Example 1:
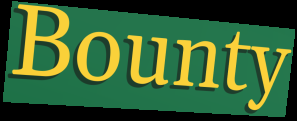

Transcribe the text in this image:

Bounty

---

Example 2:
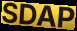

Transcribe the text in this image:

SDAP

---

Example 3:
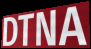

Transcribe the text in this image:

DTNA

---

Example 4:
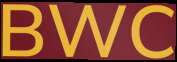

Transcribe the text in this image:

BWC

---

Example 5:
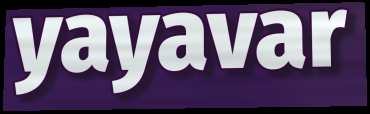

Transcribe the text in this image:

yayavar